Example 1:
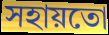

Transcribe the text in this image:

সহায়তো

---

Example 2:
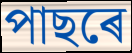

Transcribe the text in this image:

পাছৰে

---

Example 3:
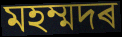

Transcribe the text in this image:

মহম্মদৰ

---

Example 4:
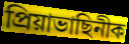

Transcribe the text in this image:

প্ৰিয়াভাছিনীক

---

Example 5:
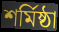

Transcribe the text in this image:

শৰ্মিষ্ঠা